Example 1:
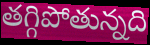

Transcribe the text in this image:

తగ్గిపోతున్నది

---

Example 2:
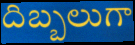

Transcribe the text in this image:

దిబ్బలుగా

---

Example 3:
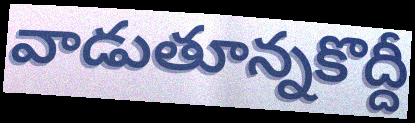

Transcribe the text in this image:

వాడుతూన్నకొద్దీ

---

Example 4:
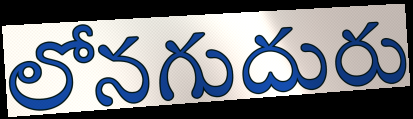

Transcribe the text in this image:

లోనగుదురు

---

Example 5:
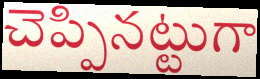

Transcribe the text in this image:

చెప్పినట్టుగా